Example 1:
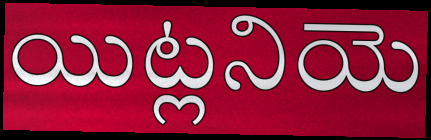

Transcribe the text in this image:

యిట్లనియె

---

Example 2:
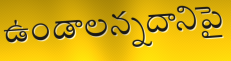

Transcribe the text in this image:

ఉండాలన్నదానిపై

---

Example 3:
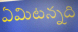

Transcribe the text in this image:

ఏమిటన్నది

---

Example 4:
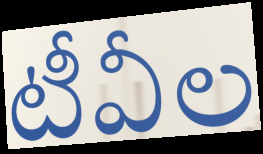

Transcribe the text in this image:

టీవీల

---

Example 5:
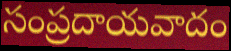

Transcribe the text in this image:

సంప్రదాయవాదం